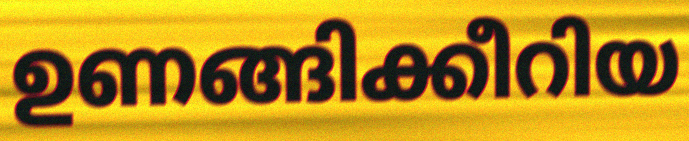
ഉണങ്ങിക്കീറിയ